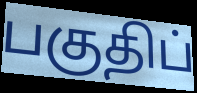
பகுதிப்